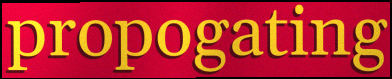
propogating